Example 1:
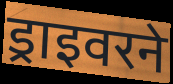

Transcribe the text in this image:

ड्राइवरने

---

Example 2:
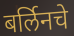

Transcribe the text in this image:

बर्लिनचे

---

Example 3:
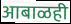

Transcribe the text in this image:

आबाळही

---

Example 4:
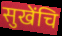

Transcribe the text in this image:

सुखेंचि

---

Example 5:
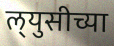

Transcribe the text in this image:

ल्युसीच्या